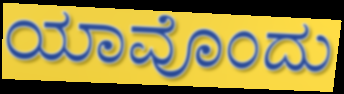
ಯಾವೊಂದು